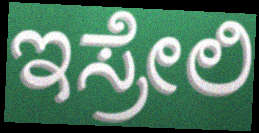
ಇಸ್ರೇಲಿ